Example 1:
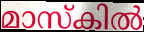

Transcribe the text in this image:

മാസ്കിൽ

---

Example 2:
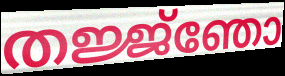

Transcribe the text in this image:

തജ്ജ്ഞോ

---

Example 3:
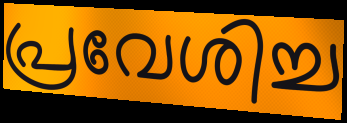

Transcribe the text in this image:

പ്രവേശിച്ച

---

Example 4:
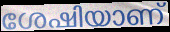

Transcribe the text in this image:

ശേഷിയാണ്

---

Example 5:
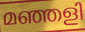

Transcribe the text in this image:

മഞ്ഞളി